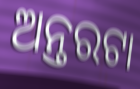
ଅନ୍ତରଟା